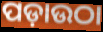
ପଡ଼ାଉଠା